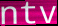
ntv